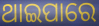
ଥାଇପାରେ